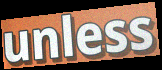
unless